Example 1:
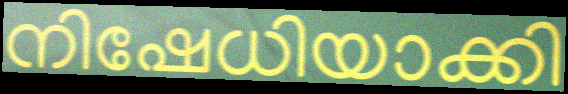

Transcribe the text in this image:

നിഷേധിയാക്കി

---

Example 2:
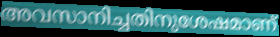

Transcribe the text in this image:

അവസാനിച്ചതിനുശേഷമാണ്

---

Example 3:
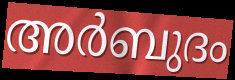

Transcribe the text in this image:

അർബുദം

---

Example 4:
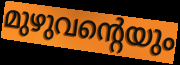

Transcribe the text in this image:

മുഴുവന്റെയും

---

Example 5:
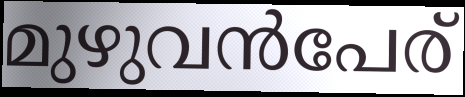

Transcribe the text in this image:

മുഴുവൻപേര്